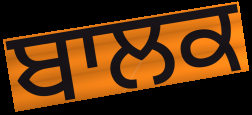
ਬਾਲਕ